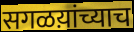
सगळय़ांच्याच